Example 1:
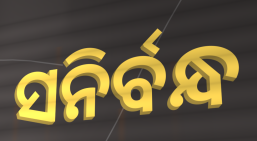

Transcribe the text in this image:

ସନିର୍ବନ୍ଧ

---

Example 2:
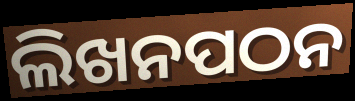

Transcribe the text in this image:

ଲିଖନପଠନ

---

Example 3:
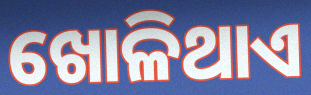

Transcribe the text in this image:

ଖୋଳିଥାଏ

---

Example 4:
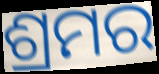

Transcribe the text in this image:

ଶ୍ରମର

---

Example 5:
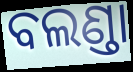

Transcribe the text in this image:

ବଲଣ୍ଡା